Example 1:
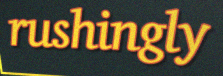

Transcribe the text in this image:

rushingly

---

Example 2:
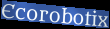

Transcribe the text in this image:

Ecorobotix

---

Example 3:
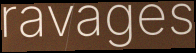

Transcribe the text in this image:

ravages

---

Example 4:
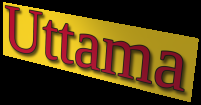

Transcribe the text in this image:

Uttama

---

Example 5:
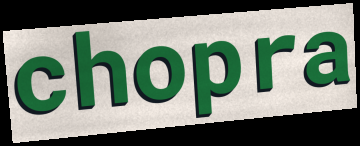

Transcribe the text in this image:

chopra